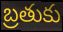
బ్రతుకు